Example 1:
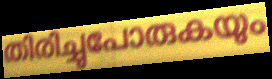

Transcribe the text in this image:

തിരിച്ചുപോരുകയും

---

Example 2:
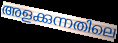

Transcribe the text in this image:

അളക്കുന്നതിലെ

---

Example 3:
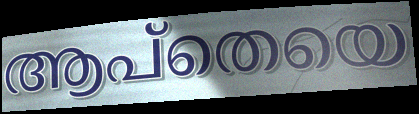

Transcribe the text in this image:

ആപ്തെയെ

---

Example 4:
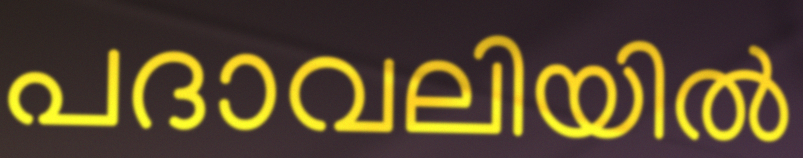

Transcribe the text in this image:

പദാവലിയിൽ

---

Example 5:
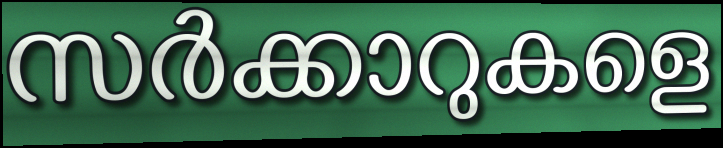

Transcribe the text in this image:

സർക്കാറുകളെ